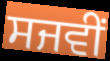
ਸਜਵੀਂ